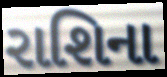
રાશિના